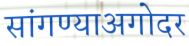
सांगण्याअगोदर